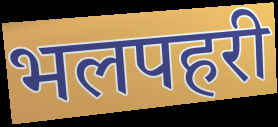
भलपहरी